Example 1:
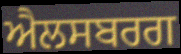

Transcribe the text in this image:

ਐਲਸਬਰਗ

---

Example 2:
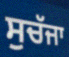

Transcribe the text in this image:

ਸੁਚੱਜਾ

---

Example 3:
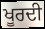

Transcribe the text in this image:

ਖੂਰਦੀ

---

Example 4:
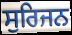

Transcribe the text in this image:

ਸੁਰਿਜਨ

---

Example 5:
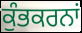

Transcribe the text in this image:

ਕੁੰਭਕਰਨਾਂ